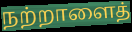
நற்றாளைத்